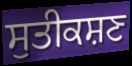
ਸੁਤੀਕਸ਼ਣ